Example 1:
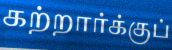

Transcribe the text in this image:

கற்றார்க்குப்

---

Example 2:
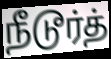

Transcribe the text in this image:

நீடூர்த்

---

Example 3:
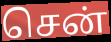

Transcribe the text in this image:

சென்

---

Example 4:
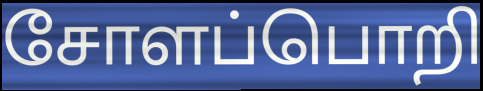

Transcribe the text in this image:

சோளப்பொறி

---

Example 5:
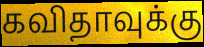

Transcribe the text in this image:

கவிதாவுக்கு